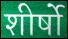
शीर्षो